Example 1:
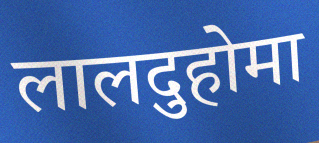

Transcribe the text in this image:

लालदुहोमा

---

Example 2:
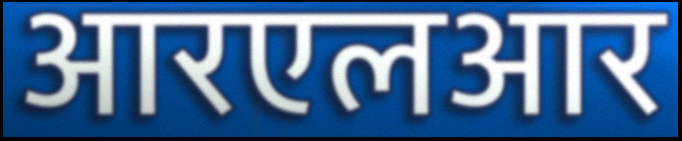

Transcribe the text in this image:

आरएलआर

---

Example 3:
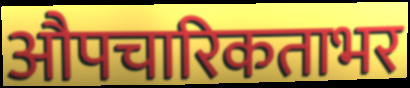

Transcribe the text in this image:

औपचारिकताभर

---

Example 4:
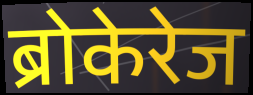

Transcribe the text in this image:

ब्रोकेरेज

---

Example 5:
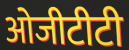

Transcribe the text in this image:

ओजीटीटी